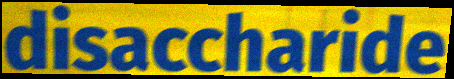
disaccharide